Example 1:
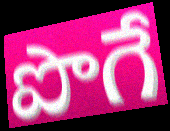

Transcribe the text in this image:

పొగే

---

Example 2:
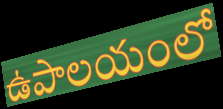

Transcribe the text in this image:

ఉపాలయంలో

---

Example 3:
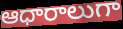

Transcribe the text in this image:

ఆధారాలుగా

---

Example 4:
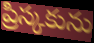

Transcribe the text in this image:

ప్రిస్కకును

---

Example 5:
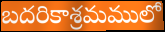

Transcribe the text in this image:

బదరికాశ్రమములో